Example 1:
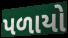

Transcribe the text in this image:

પળાયો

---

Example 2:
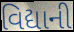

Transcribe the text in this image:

વિદ્યાની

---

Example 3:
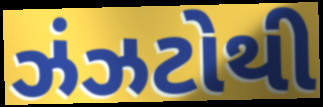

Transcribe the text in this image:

ઝંઝટોથી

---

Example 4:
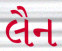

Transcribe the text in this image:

લૈન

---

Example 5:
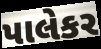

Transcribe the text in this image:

પાલેકર